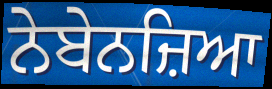
ਨੇਬੇਨਜ਼ਿਆ